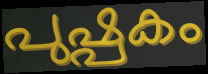
പുഷ്പകം